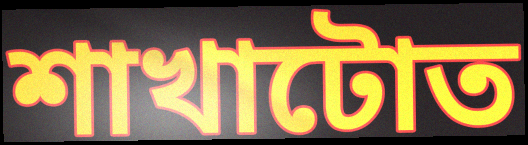
শাখাটোত